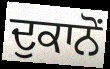
ਦੁਕਾਨੋਂ